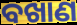
ବଖାଣ